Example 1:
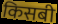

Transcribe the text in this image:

किसबी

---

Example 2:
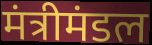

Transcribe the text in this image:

मंत्रीमंडल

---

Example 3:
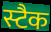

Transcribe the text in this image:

स्‍टैक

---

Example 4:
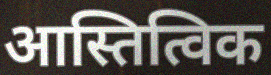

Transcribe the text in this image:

आस्तित्विक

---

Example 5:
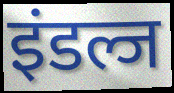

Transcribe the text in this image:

इंडल्ज